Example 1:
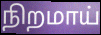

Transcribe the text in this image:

நிறமாய்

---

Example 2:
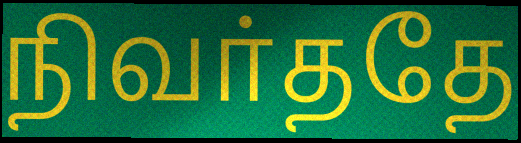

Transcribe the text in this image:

நிவர்ததே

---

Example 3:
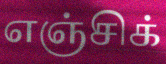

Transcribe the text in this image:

எஞ்சிக்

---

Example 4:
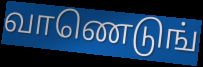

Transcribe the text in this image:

வாணெடுங்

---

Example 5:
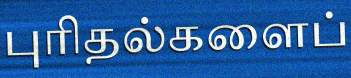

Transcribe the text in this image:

புரிதல்களைப்